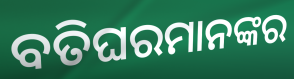
ବତିଘରମାନଙ୍କର